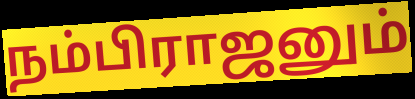
நம்பிராஜனும்